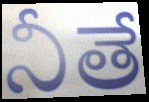
నీతే